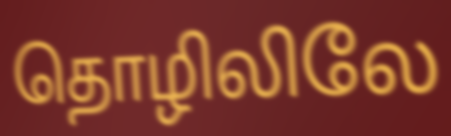
தொழிலிலே